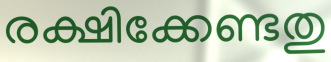
രക്ഷിക്കേണ്ടതു